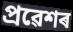
প্ৰৱেশৰ